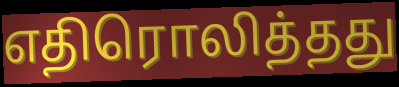
எதிரொலித்தது